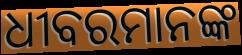
ଧୀବରମାନଙ୍କ